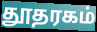
தூதரகம்